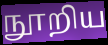
நூறிய